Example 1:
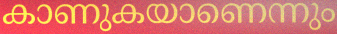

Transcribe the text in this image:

കാണുകയാണെന്നും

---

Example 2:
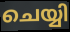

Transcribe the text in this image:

ചെയ്യി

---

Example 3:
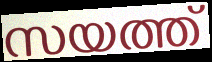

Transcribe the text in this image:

സയത്ത്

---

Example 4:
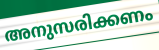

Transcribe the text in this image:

അനുസരിക്കണം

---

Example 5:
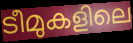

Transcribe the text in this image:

ടീമുകളിലെ